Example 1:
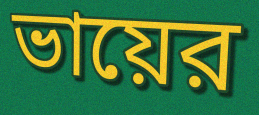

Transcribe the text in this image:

ভায়ের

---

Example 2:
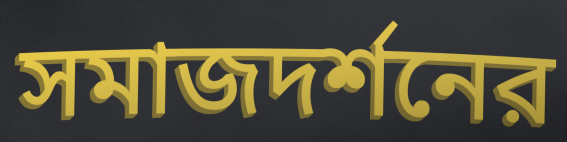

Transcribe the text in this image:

সমাজদর্শনের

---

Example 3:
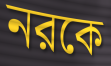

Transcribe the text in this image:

নরকে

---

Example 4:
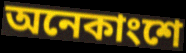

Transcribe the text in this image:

অনেকাংশে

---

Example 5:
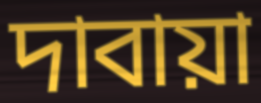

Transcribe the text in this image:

দাবায়া